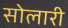
सोलारी